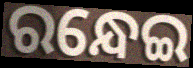
ରନ୍ଧେଇ